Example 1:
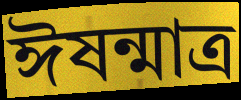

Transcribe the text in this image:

ঈষন্মাত্র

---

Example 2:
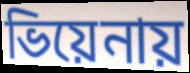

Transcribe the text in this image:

ভিয়েনায়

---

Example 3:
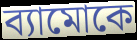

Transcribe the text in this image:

ব্যামোকে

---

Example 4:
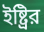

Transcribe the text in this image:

ইষ্ট্রির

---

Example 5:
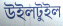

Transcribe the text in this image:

উইলটুইল